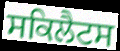
ਸਕਿਲੈਟਸ